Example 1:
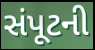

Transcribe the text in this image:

સંપૂટની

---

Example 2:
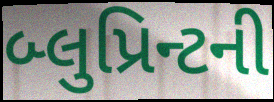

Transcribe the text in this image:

બ્લુપ્રિન્ટની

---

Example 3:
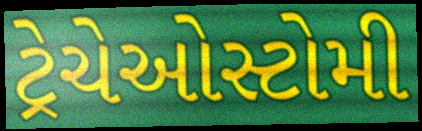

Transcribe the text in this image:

ટ્રેચેઓસ્ટોમી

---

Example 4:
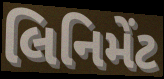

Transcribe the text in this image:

લિનિમેંટ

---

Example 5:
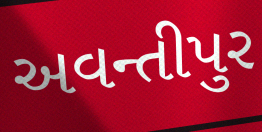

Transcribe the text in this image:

અવન્તીપુર